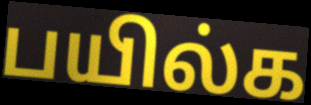
பயில்க